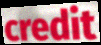
credit